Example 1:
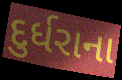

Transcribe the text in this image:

દુર્ધરાના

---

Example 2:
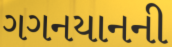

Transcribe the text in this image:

ગગનયાનની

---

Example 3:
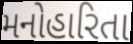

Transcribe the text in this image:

મનોહારિતા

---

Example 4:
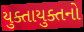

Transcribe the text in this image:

યુક્તાયુક્તનો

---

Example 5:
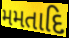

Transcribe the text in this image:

મમતાદિ